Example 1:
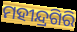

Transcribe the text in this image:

ମହୀନ୍ଦ୍ରଗିରି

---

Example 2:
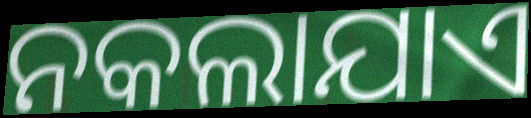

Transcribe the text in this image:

ନକଲାଯାଏ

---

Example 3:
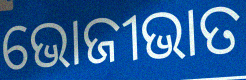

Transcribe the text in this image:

ଭୋଜୀଭାତ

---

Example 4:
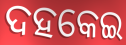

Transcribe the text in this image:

ଦହକେଇ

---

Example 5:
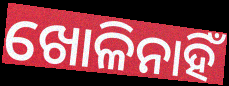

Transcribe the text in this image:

ଖୋଳିନାହିଁ